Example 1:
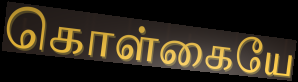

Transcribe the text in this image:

கொள்கையே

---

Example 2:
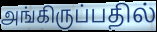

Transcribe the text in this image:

அங்கிருப்பதில்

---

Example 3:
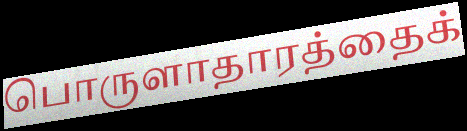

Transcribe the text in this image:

பொருளாதாரத்தைக்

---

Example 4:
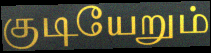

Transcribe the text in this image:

குடியேறும்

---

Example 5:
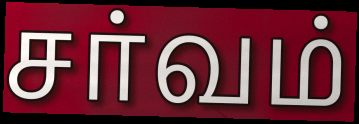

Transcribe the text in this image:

சர்வம்